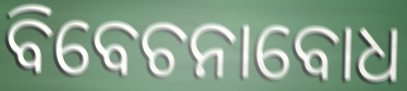
ବିବେଚନାବୋଧ